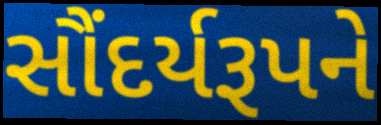
સૌંદર્યરૂપને